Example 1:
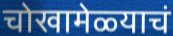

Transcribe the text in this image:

चोखामेळ्याचं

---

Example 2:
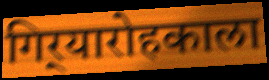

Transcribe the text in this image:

गिर्यारोहकाला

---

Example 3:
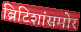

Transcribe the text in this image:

ब्रिटिशांसमोर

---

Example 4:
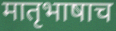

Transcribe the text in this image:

मातृभाषाच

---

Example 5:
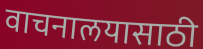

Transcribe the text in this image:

वाचनालयासाठी